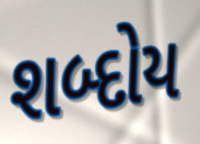
શબ્દોય